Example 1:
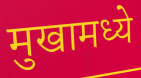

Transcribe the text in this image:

मुखामध्ये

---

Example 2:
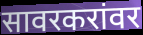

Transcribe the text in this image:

सावरकरांवर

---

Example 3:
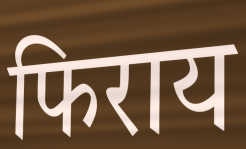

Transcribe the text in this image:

फिराय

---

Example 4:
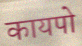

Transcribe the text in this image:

कायपो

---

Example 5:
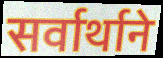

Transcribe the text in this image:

सर्वार्थाने